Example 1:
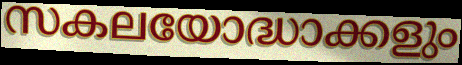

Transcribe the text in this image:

സകലയോദ്ധാക്കളും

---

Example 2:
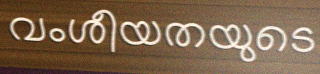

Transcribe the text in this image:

വംശീയതയുടെ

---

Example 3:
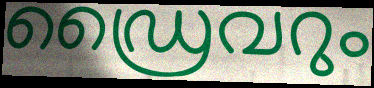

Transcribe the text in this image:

ഡ്രൈവറും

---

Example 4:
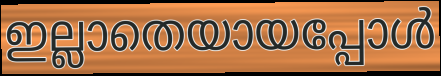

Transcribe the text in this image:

ഇല്ലാതെയായപ്പോൾ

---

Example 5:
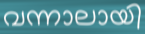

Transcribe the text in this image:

വന്നാലായി